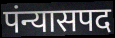
पंन्यासपद